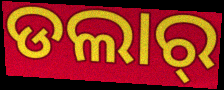
ଡଲାର୍